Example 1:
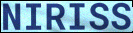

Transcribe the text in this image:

NIRISS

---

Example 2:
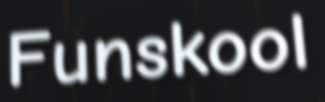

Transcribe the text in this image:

Funskool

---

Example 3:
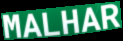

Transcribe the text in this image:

MALHAR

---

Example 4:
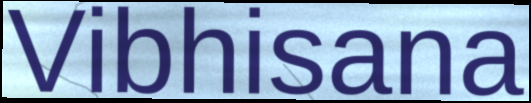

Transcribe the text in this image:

Vibhisana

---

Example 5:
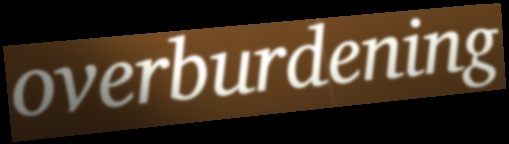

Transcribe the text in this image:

overburdening